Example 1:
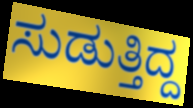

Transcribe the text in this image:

ಸುಡುತ್ತಿದ್ದ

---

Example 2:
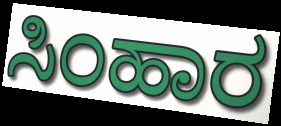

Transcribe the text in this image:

ಸಿಂಹಾರ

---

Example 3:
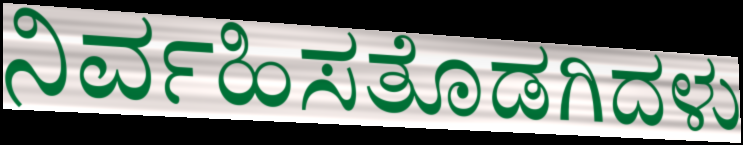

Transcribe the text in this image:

ನಿರ್ವಹಿಸತೊಡಗಿದಳು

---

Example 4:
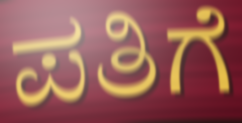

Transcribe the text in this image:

ಪತಿಗೆ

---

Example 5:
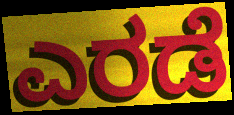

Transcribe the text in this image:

ಎರಡೆ